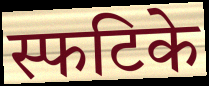
स्फटिके